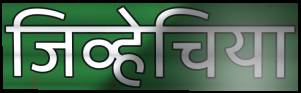
जिव्हेचिया